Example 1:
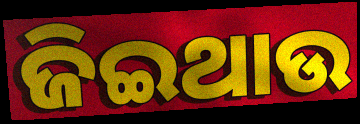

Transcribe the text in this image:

ଜିଇଥାଉ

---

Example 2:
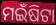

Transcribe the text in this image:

ମଇଁଷିଟା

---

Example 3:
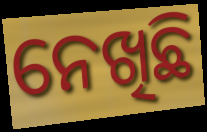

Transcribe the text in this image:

ନେଖିଛି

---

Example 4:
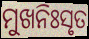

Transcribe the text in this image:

ମୁଖନିଃସୃତ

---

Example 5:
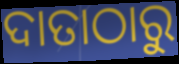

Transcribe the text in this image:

ଦାତାଠାରୁ